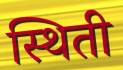
स्थिती